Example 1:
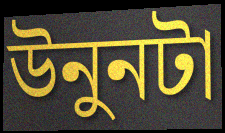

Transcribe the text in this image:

উনুনটা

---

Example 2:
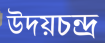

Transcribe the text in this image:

উদয়চন্দ্র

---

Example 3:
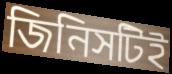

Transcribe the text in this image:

জিনিসটিই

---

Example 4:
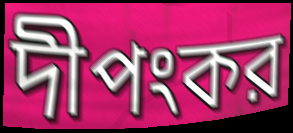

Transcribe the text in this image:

দীপংকর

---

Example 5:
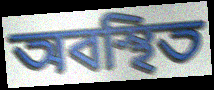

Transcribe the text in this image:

অবস্থিত